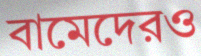
বামেদেরও